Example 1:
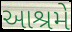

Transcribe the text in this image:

આશ્રમે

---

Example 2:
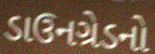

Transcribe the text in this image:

ડાઉનગ્રેડનો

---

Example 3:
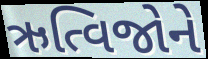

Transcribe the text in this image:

ઋત્વિજોને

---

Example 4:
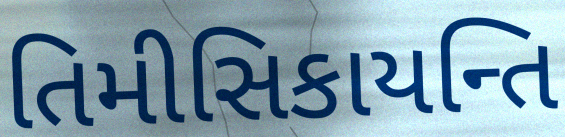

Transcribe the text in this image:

તિમીસિકાયન્તિ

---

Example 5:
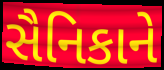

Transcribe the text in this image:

સૈનિકાને